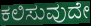
ಕಲಿಸುವುದೇ